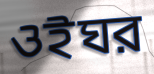
ওইঘর